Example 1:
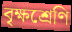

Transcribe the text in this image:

বৃক্ষশ্রেণি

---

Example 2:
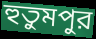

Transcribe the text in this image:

হুতুমপুর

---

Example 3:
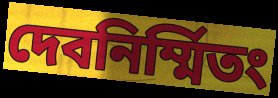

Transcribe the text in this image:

দেবনির্ম্মিতং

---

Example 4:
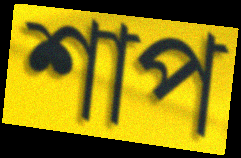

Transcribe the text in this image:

শাপ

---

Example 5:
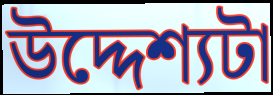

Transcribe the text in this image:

উদ্দেশ্যটা